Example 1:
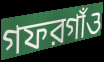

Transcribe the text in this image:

গফরগাঁও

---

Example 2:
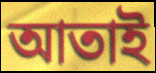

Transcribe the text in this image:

আতাই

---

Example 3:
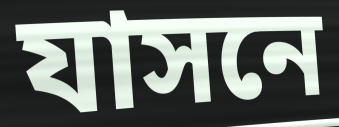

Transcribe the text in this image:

যাসনে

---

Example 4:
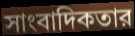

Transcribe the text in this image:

সাংবাদিকতার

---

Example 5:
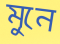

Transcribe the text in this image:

মুনে